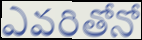
ఎవరితోనో